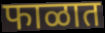
फाळात